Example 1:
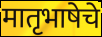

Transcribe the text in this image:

मातृभाषेचे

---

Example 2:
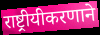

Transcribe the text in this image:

राष्ट्रीयीकरणाने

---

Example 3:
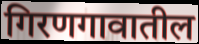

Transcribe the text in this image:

गिरणगावातील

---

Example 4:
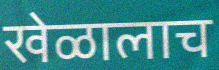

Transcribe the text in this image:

खेळालाच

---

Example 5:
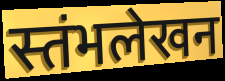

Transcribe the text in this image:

स्तंभलेखन